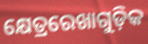
କ୍ଷେତ୍ରରେଖାଗୁଡ଼ିକ